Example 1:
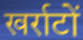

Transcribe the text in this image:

खर्राटों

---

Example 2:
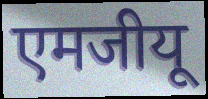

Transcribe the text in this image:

एमजीयू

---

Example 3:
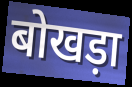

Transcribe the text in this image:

बोखड़ा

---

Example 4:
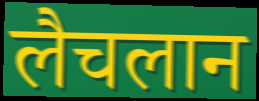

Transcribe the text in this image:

लैचलान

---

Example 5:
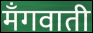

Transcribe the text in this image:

मँगवाती